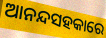
ଆନନ୍ଦସହକାରେ